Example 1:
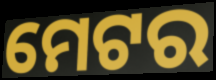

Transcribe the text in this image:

ମେଟର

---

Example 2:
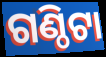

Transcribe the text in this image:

ଗଣ୍ଠିଟା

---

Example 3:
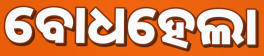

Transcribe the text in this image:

ବୋଧହେଲା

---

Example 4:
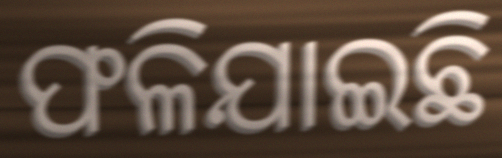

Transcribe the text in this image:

ଫଳିଯାଇଛି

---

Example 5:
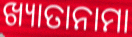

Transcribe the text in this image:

ଖ୍ୟାତାନାମା